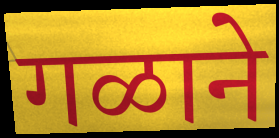
गळाने